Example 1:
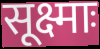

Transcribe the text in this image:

सूक्ष्माः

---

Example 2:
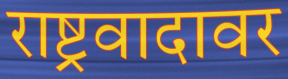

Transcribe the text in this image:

राष्ट्रवादावर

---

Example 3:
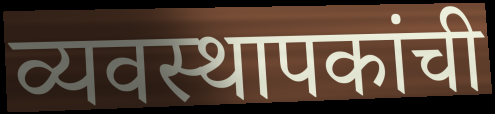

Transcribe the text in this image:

व्यवस्थापकांची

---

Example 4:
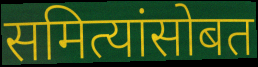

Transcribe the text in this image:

समित्यांसोबत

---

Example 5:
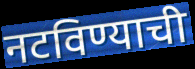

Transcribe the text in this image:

नटविण्याची